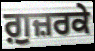
ਗ਼ੁਜ਼ਰਕੇ